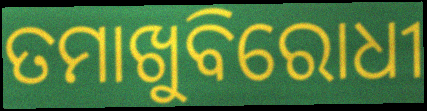
ତମାଖୁବିରୋଧୀ